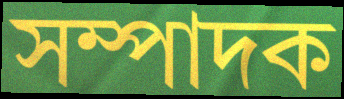
সম্পাদক